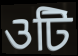
ওটি